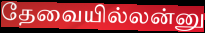
தேவையில்லன்னு